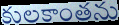
కులకాంతను